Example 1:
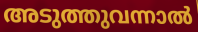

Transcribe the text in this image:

അടുത്തുവന്നാൽ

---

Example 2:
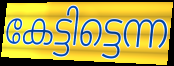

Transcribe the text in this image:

കേട്ടിട്ടെന്ന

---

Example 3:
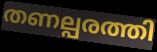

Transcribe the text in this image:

തണല്പരത്തി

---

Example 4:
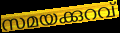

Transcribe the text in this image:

സമയക്കുറവ്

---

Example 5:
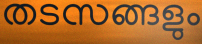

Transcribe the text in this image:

തടസങ്ങളും